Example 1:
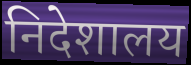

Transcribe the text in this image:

निदेशालय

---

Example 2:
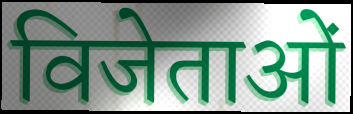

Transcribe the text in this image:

विजेताओं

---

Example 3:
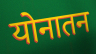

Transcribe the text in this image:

योनातन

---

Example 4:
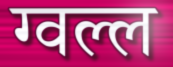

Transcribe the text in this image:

ग्वल्ल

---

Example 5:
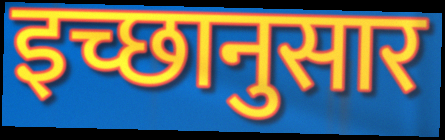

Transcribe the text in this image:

इच्छानुसार